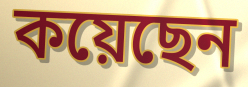
কয়েছেন